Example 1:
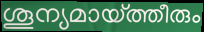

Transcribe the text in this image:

ശൂന്യമായ്ത്തീരും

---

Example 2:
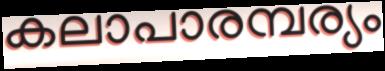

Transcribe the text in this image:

കലാപാരമ്പര്യം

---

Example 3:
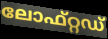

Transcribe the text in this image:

ലോഫ്റ്റഡ്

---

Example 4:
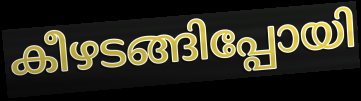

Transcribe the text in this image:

കീഴടങ്ങിപ്പോയി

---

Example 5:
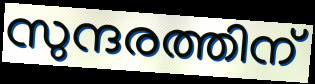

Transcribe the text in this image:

സുന്ദരത്തിന്